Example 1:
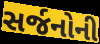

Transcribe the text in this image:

સર્જનોની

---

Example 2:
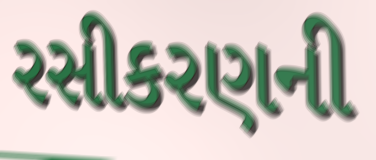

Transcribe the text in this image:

રસીકરણની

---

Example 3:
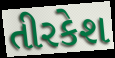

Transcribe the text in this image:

તીરકેશ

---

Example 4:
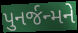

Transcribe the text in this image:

પુનર્જન્મને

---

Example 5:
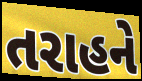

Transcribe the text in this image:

તરાહને